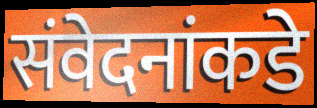
संवेदनांकडे